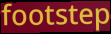
footstep